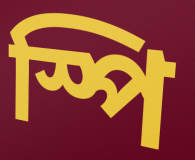
স্পি